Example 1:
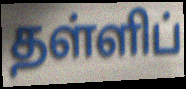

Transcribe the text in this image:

தள்ளிப்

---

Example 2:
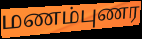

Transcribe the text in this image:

மணம்புணர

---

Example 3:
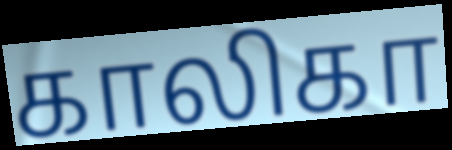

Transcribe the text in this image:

காலிகா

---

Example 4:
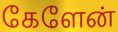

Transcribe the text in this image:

கேளேன்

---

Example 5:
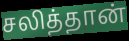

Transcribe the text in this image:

சலித்தான்